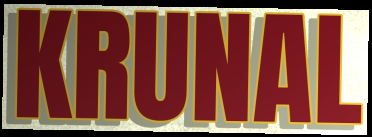
KRUNAL